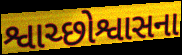
શ્વાચ્છોશ્વાસના